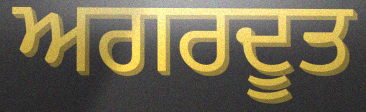
ਅਗਰਦੂਤ